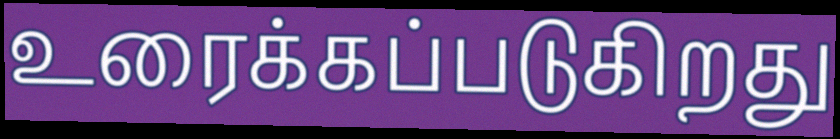
உரைக்கப்படுகிறது